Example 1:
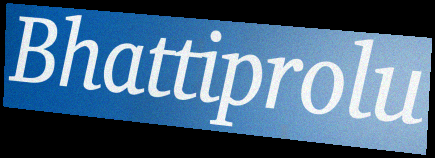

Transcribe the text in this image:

Bhattiprolu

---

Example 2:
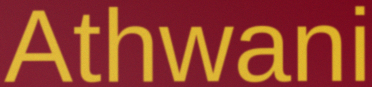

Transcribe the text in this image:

Athwani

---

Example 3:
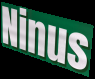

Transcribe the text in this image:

Ninus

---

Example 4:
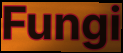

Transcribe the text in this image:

Fungi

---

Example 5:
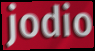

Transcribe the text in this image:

jodio